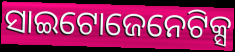
ସାଇଟୋଜେନେଟିକ୍ସ